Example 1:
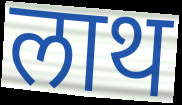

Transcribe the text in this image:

लाथ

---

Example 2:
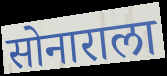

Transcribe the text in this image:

सोनाराला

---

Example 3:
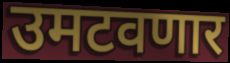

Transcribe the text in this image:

उमटवणार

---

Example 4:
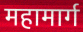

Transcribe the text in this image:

महामार्ग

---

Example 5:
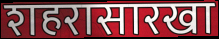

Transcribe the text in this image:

शहरासारखा